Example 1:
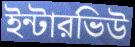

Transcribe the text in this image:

ইন্টারভিউ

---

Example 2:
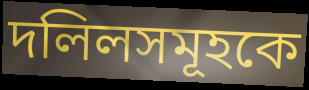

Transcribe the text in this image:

দলিলসমূহকে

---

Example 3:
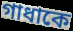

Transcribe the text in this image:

গাধাকে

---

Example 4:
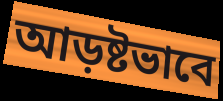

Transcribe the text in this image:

আড়ষ্টভাবে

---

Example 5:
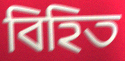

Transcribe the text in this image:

বিহিত